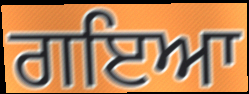
ਗਇਆ